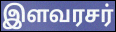
இளவரசர்